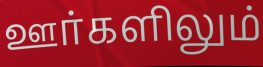
ஊர்களிலும்